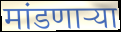
मांडणाऱ्या